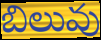
బిలువు